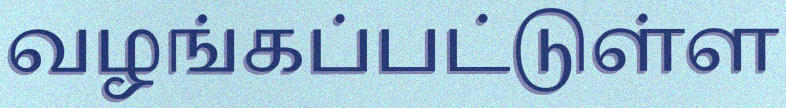
வழங்கப்பட்டுள்ள